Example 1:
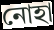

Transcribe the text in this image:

নোহা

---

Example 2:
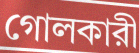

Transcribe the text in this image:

গোলকারী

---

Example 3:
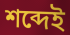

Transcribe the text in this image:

শব্দেই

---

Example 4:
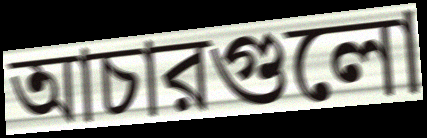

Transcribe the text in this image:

আচারগুলো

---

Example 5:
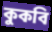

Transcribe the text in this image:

কুকবি